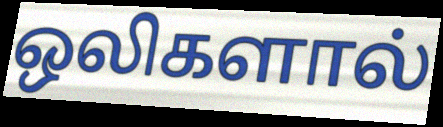
ஒலிகளால்